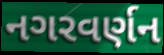
નગરવર્ણન